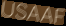
USAAF